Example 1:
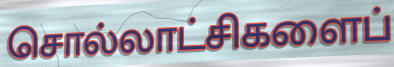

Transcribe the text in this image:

சொல்லாட்சிகளைப்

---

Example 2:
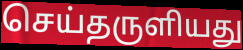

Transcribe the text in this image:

செய்தருளியது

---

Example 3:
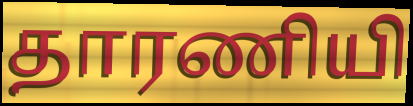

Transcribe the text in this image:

தாரணியி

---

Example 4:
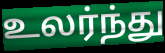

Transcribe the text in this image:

உலர்ந்து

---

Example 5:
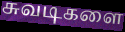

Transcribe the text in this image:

சுவடிகளை